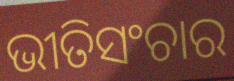
ଭୀତିସଂଚାର